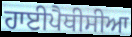
ਹਾਈਪੈਥੀਸੀਆ